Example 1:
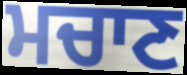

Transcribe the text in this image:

ਮਚਾਣ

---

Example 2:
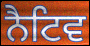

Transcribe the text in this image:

ਨੈਟਿਵ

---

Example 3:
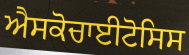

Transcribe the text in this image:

ਐਸਕੋਚਾਈਟੋਸਿਸ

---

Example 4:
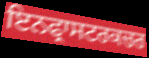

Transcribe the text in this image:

ਇਨਫ੍ਰਾਸਟਰਕਚਰ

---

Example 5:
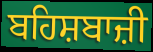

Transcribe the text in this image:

ਬਹਿਸ਼ਬਾਜ਼ੀ